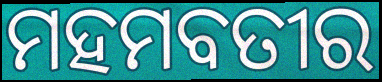
ମହମବତୀର